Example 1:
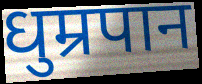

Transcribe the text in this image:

धुम्रपान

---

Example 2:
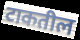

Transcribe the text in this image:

टाकतील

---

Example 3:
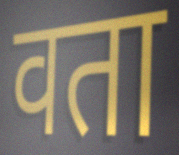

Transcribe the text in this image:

वता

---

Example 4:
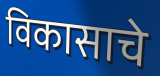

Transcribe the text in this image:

विकासाचे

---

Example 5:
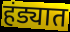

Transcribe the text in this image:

हंड्यात